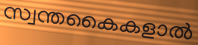
സ്വന്തകൈകളാൽ